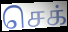
செக்